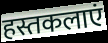
हस्तकलाएं